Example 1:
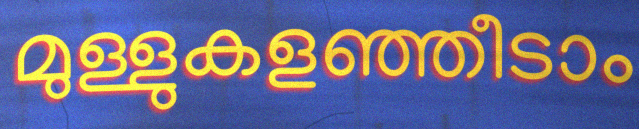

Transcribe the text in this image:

മുള്ളുകളഞ്ഞീടാം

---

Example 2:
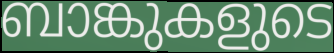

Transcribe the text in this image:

ബാങ്കുകളുടെ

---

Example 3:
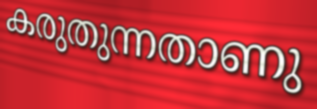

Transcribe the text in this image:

കരുതുന്നതാണു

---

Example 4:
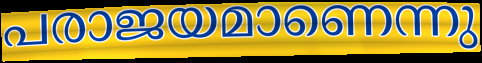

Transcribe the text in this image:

പരാജയമാണെന്നു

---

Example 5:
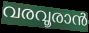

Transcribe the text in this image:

വരവൂരാൻ